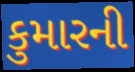
કુમારની